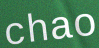
chao